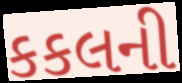
કકલની